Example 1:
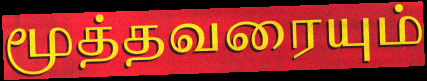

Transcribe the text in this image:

மூத்தவரையும்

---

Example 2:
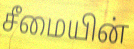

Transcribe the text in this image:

சீமையின்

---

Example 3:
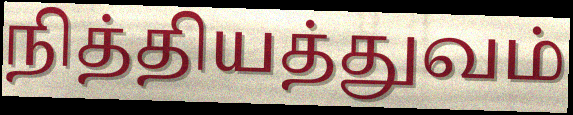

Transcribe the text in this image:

நித்தியத்துவம்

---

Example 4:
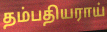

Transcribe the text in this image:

தம்பதியராய்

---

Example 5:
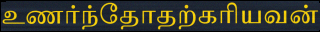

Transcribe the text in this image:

உணர்ந்தோதற்கரியவன்